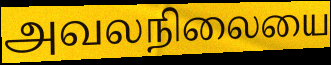
அவலநிலையை